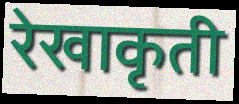
रेखाकृती